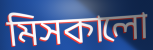
মিসকালো